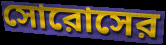
সোরোসের